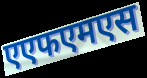
एएफएमएस